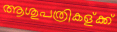
ആശുപത്രികള്ക്ക്